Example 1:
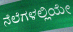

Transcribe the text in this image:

ನೆಲೆಗಳಲ್ಲಿಯೇ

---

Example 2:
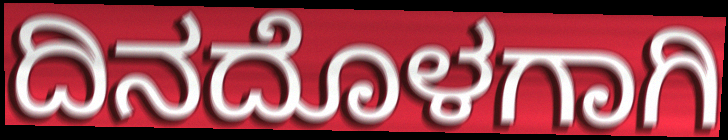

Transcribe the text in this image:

ದಿನದೊಳಗಾಗಿ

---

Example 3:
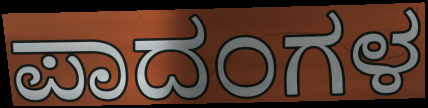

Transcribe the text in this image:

ಪಾದಂಗಳ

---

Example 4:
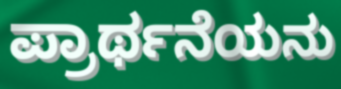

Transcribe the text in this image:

ಪ್ರಾರ್ಥನೆಯನು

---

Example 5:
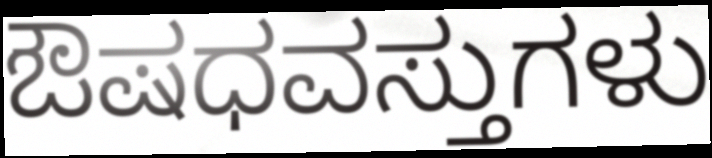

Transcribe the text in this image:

ಔಷಧವಸ್ತುಗಳು